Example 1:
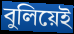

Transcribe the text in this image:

বুলিয়েই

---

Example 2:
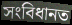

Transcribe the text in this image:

সংবিধানত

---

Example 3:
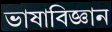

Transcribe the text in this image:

ভাষাবিজ্ঞান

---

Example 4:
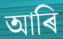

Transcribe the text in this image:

আৰি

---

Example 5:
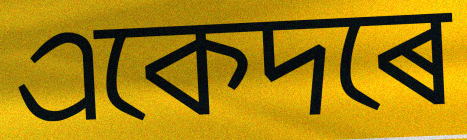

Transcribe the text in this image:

একেদৰে